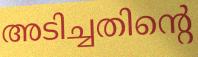
അടിച്ചതിന്റെ